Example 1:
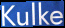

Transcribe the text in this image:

Kulke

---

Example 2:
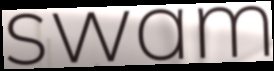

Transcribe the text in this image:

swam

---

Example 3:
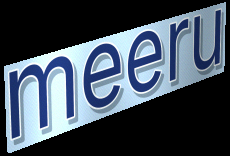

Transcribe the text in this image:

meeru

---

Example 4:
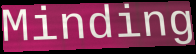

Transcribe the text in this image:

Minding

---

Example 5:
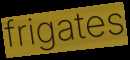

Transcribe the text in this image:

frigates